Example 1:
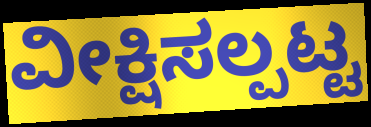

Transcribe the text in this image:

ವೀಕ್ಷಿಸಲ್ಪಟ್ಟ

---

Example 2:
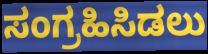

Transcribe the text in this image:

ಸಂಗ್ರಹಿಸಿಡಲು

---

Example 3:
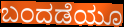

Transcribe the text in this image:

ಬಂದಡೆಯೂ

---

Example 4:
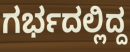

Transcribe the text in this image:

ಗರ್ಭದಲ್ಲಿದ್ದ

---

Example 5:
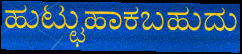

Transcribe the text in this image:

ಹುಟ್ಟುಹಾಕಬಹುದು